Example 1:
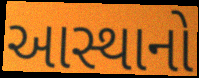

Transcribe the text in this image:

આસ્થાનો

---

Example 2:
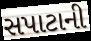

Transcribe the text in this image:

સપાટાની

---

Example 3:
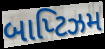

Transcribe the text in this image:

બાપ્ટિઝમ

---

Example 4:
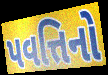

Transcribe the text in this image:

પવત્તિનો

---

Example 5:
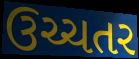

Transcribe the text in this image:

ઉચ્ચતર